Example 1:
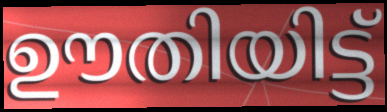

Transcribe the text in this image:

ഊതിയിട്ട്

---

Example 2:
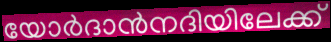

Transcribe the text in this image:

യോർദാൻനദിയിലേക്ക്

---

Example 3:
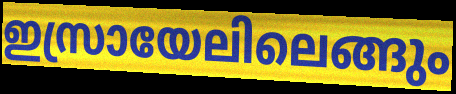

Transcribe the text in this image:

ഇസ്രായേലിലെങ്ങും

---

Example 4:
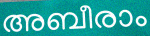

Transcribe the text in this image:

അബീരാം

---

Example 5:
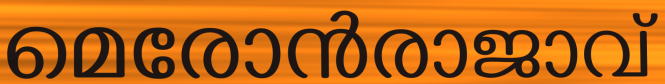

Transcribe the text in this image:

മെരോൻരാജാവ്